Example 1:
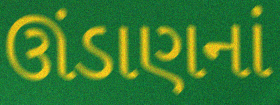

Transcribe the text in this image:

ઊંડાણનાં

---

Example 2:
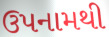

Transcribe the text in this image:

ઉપનામથી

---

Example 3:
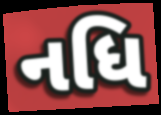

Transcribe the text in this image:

નધિ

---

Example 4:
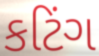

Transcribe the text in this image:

કટિંગ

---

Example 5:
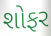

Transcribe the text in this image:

શોફર